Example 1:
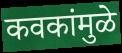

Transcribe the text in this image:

कवकांमुळे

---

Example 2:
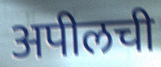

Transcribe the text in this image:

अपीलची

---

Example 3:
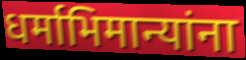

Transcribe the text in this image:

धर्माभिमान्यांना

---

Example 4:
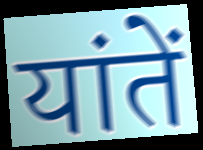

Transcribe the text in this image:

यांतें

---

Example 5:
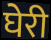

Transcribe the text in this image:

घेरी